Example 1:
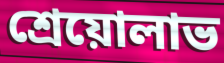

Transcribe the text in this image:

শ্রেয়োলাভ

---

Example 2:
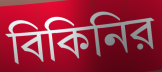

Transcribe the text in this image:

বিকিনির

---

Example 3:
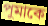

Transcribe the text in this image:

পুমাকে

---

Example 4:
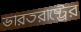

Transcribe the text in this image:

ভারতরাষ্ট্রের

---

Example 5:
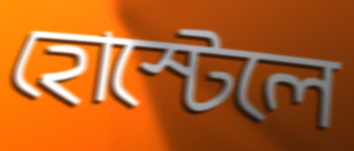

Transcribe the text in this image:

হোস্টেলে